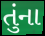
તુંના